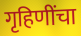
गृहिणींचा